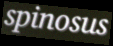
spinosus